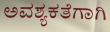
ಅವಶ್ಯಕತೆಗಾಗಿ